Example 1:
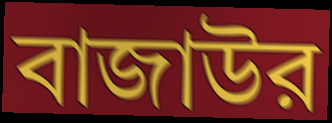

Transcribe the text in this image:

বাজাউর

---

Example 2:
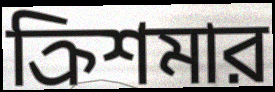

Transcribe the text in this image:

ক্রিশমার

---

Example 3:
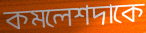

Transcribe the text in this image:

কমলেশদাকে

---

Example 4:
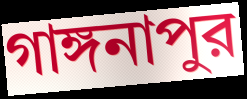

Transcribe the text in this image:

গাঙ্গনাপুর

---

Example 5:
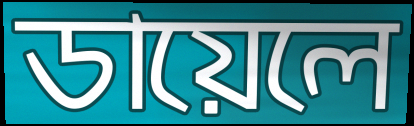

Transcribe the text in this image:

ডায়েলে